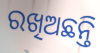
ରଖିଅଛନ୍ତି